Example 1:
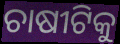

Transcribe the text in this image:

ଚାଷୀଟିକୁ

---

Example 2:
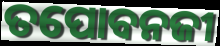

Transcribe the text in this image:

ତପୋବନଜୀ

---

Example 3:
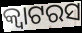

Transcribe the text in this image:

କ୍ୱାଟରସ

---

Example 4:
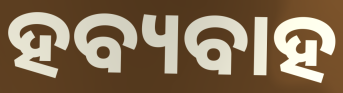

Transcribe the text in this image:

ହବ୍ୟବାହ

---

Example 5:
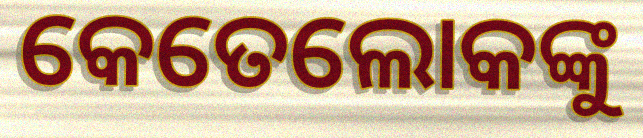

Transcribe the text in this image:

କେତେଲୋକଙ୍କୁ